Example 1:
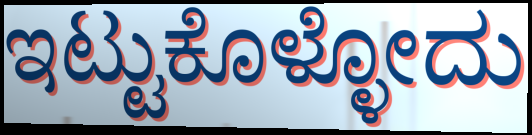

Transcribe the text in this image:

ಇಟ್ಟುಕೊಳ್ಳೋದು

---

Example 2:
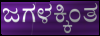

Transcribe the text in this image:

ಜಗಳಕ್ಕಿಂತ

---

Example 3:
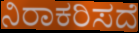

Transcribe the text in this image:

ನಿರಾಕರಿಸದೆ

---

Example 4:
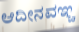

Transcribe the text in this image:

ಆದೀನವಞ್ಚ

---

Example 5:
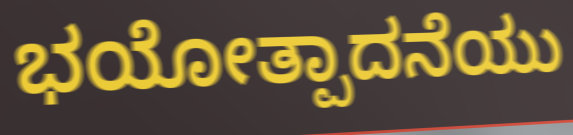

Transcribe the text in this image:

ಭಯೋತ್ಪಾದನೆಯು